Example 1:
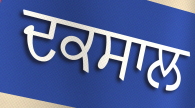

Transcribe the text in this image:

ਦਕਸਾਲ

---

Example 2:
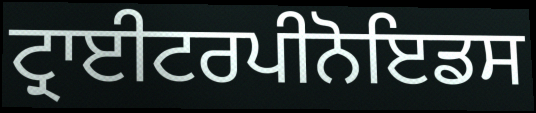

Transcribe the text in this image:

ਟ੍ਰਾਈਟਰਪੀਨੋਇਡਸ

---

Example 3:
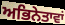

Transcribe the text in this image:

ਅਭਿਨੇਤਾਵਾਂ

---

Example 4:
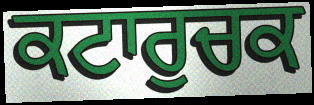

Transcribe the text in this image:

ਕਟਾਰੁਚਕ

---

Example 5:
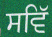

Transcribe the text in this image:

ਸਵਿੱ